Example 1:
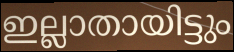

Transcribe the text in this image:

ഇല്ലാതായിട്ടും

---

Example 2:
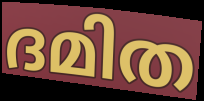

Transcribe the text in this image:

ദമിത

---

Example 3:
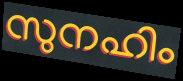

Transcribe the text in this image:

സുനഹിം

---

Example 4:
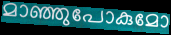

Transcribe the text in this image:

മാഞ്ഞുപോകുമോ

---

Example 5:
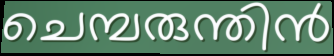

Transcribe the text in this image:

ചെമ്പരുന്തിൻ